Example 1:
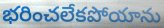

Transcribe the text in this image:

భరించలేకపోయాను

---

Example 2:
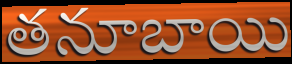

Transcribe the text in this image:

తనూబాయి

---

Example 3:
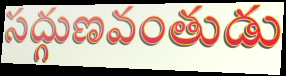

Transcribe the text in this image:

సద్గుణవంతుడు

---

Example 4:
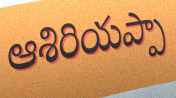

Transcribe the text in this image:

ఆశిరియప్పా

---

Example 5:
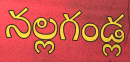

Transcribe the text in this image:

నల్లగండ్ల